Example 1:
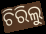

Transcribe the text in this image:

ଚିରିଲୁ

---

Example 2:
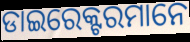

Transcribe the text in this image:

ଡାଇରେକ୍ଟରମାନେ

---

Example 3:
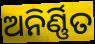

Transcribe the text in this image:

ଅନିର୍ଣ୍ଣିତ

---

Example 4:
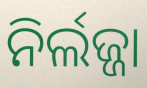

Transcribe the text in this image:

ନିର୍ଲଜ୍ଜା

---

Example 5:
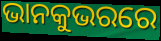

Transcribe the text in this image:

ଭାନକୁଭରରେ